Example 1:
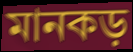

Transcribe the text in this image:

মানকড়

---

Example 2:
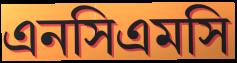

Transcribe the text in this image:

এনসিএমসি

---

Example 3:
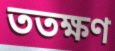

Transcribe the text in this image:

ততক্ষণ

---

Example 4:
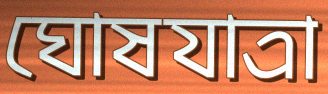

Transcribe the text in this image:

ঘোষযাত্রা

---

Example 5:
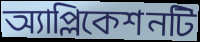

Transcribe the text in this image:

অ্যাপ্লিকেশনটি